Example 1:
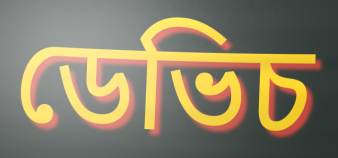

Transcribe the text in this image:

ডেভিচ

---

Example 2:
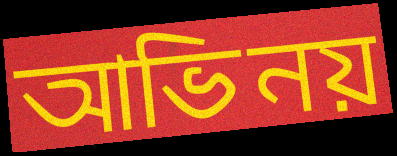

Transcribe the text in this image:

আভিনয়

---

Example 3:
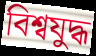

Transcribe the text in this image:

বিশ্বযুদ্ধ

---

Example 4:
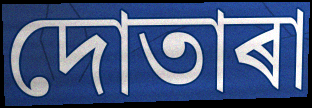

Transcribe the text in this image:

দোতাৰা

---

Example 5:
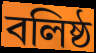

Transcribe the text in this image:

বলিষ্ঠ